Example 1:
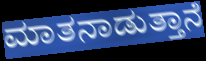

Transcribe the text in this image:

ಮಾತನಾಡುತ್ತಾನೆ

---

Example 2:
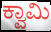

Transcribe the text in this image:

ಕ್ವಾಮಿ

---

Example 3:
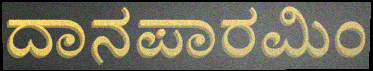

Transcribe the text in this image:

ದಾನಪಾರಮಿಂ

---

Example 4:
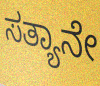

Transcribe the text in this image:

ಸತ್ಯಾನೇ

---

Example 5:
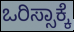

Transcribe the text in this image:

ಒರಿಸ್ಸಾಕ್ಕೆ